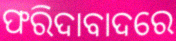
ଫରିଦାବାଦରେ